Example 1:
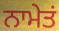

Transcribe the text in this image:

ਨਾਮੇਤਂ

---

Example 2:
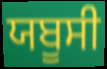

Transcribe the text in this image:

ਯਬੂਸੀ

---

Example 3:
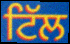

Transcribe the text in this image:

ਟਿੱਲ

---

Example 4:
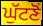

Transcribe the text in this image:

ਘੁੱਟਣੋਂ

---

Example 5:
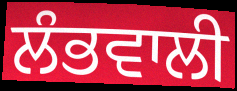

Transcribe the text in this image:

ਲੰਭਵਾਲੀ